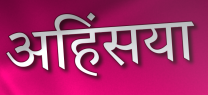
अहिंसया